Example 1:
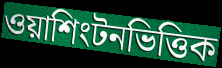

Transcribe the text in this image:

ওয়াশিংটনভিত্তিক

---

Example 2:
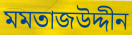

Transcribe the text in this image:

মমতাজউদ্দীন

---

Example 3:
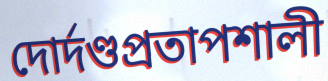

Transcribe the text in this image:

দোর্দণ্ডপ্রতাপশালী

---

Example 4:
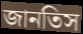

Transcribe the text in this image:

জানতিস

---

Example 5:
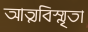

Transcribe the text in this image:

আত্মবিস্মৃতা